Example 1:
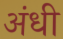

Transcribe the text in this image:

अंधी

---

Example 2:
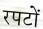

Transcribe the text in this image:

रपटों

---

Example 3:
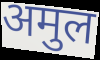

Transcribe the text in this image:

अमुल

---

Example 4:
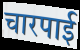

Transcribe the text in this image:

चारपाई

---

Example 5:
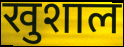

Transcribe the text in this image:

खुशाल